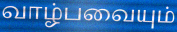
வாழ்பவையும்